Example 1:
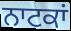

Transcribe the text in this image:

ਨਾਟਕਾਂ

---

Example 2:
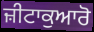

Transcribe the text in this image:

ਜ਼ੀਟਾਕੁਆਰੋ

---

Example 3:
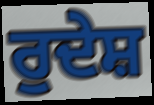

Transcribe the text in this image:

ਰੁਦੇਸ਼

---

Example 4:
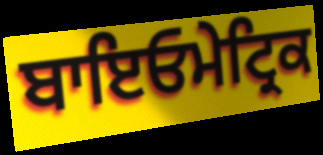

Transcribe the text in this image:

ਬਾਇਓਮੇਟ੍ਰਿਕ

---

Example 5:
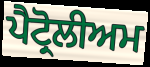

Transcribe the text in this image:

ਪੈਟ੍ਰੋਲੀਅਮ